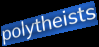
polytheists